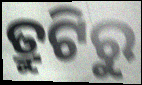
ତ୍ରୁଟିରୁ